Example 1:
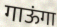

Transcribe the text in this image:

गाऊंगा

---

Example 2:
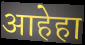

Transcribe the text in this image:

आहेहा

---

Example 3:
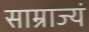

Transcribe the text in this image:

साम्राज्यं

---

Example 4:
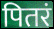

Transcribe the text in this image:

पितरं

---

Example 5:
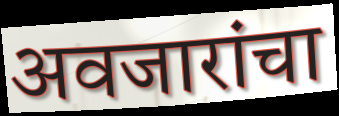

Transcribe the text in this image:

अवजारांचा